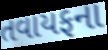
તવાયફના